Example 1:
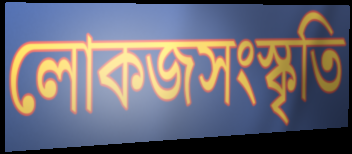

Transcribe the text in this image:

লোকজসংস্কৃতি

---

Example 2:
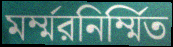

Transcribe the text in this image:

মর্ম্মরনির্ম্মিত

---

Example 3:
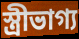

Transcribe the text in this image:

স্ত্রীভাগ্য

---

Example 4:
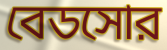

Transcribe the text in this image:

বেডসোর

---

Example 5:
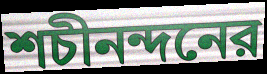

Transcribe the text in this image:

শচীনন্দনের